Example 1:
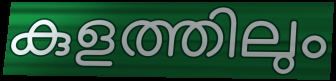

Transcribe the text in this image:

കുളത്തിലും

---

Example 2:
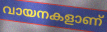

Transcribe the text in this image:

വായനകളാണ്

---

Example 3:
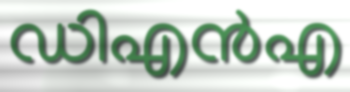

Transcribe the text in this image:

ഡിഎൻഎ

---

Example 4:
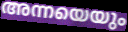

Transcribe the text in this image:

അന്നയെയും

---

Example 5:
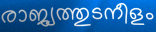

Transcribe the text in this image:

രാജ്യത്തുടനീളം